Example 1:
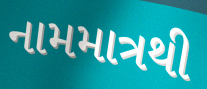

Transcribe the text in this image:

નામમાત્રથી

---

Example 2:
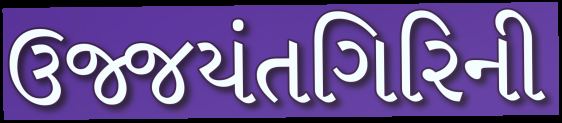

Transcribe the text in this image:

ઉજ્જયંતગિરિની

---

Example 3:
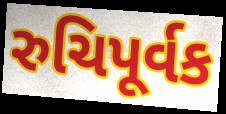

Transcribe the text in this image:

રુચિપૂર્વક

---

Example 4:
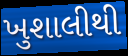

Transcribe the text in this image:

ખુશાલીથી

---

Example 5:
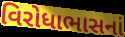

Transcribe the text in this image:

વિરોધાભાસનાં